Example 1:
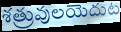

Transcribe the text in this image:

శత్రువులయెదుట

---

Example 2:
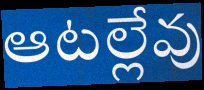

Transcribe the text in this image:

ఆటల్లేవు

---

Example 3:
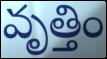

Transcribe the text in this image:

వృత్తిం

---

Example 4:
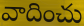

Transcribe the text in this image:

వాదించు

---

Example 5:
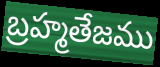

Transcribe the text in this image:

బ్రహ్మతేజము